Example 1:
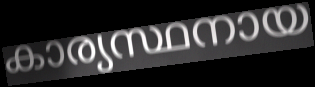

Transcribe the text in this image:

കാര്യസ്ഥനായ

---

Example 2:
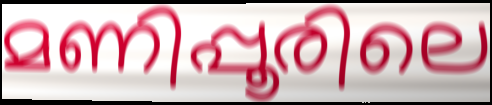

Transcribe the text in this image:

മണിപ്പൂരിലെ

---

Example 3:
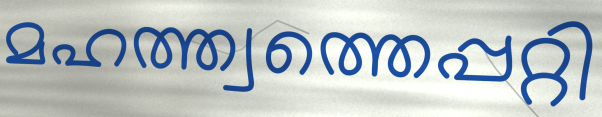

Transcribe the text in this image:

മഹത്ത്വത്തെപ്പറ്റി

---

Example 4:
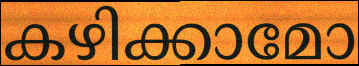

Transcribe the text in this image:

കഴിക്കാമോ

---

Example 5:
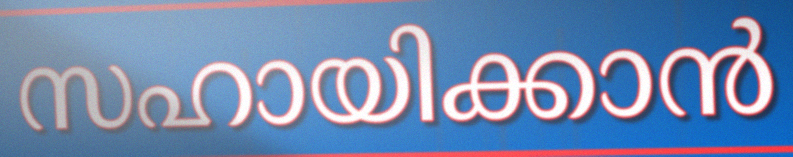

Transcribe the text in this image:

സഹായിക്കാൻ